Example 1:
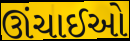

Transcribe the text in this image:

ઊંચાઈઓ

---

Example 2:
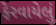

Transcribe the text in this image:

ફેરવાયેલું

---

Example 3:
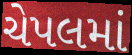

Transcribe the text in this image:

ચેપલમાં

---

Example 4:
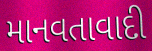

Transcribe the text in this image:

માનવતાવાદી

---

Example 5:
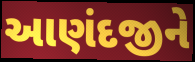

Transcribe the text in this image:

આણંદજીને